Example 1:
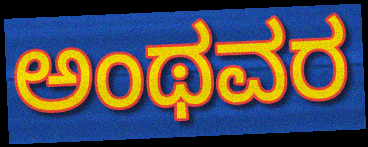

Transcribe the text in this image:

ಅಂಥವರ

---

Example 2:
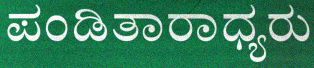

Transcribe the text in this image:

ಪಂಡಿತಾರಾಧ್ಯರು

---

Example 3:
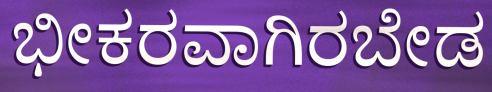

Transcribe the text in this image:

ಭೀಕರವಾಗಿರಬೇಡ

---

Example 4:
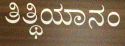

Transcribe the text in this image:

ತಿತ್ಥಿಯಾನಂ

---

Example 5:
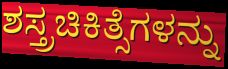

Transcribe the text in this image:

ಶಸ್ತ್ರಚಿಕಿತ್ಸೆಗಳನ್ನು